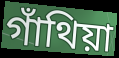
গাঁথিয়া